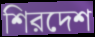
শিরদেশ